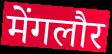
मेंगलौर